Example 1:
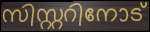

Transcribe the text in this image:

സിസ്റ്ററിനോട്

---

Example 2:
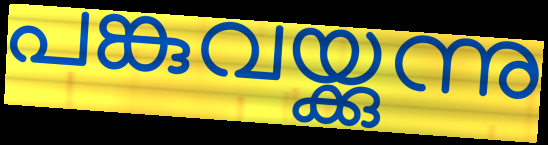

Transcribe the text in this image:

പങ്കുവയ്ക്കുന്നു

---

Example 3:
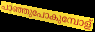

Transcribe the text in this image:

പാഞ്ഞുപോകുമ്പോള്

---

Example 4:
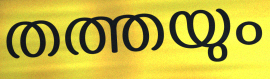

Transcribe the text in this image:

തത്തയും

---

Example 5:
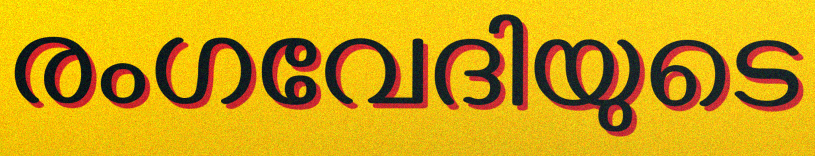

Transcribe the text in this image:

രംഗവേദിയുടെ